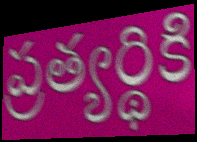
ప్రత్యర్థికి